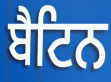
ਬੈਟਿਨ